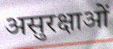
असुरक्षाओं